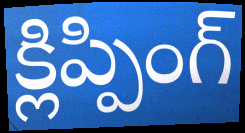
క్లిప్పింగ్